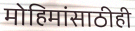
मोहिमांसाठीही